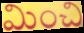
మించి